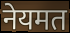
नेयमत